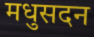
मधुसदन